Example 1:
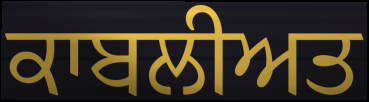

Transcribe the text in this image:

ਕਾਬਲੀਅਤ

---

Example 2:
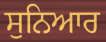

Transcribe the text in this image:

ਸੁਨਿਆਰ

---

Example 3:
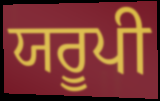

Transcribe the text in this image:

ਯਰੂਪੀ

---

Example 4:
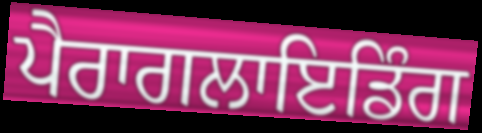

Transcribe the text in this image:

ਪੈਰਾਗਲਾਇਡਿੰਗ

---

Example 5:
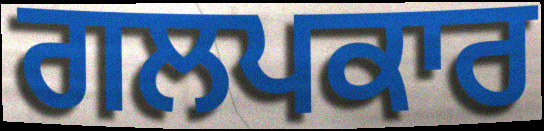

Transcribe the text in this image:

ਗਲਪਕਾਰ